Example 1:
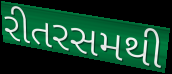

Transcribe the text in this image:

રીતરસમથી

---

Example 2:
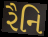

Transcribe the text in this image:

રૈનિ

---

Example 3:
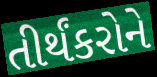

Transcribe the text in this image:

તીર્થંકરોને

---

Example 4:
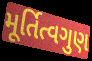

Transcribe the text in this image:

મૂર્તિત્વગુણ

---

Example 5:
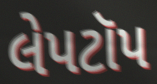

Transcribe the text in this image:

લેપટૉપ